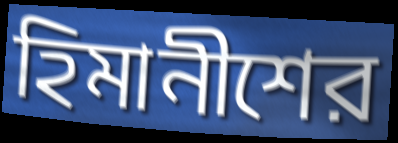
হিমানীশের